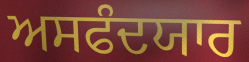
ਅਸਫੰਦਯਾਰ